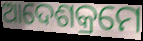
ଆଦେଶକ୍ରମେ